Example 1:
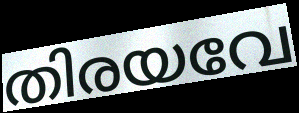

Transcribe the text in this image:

തിരയവേ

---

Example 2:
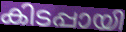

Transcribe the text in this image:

കിടപ്പായി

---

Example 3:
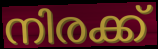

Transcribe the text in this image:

നിരക്ക്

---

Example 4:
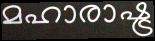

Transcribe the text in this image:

മഹാരാഷ്ട്ര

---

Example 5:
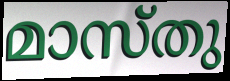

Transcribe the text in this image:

മാസ്തു